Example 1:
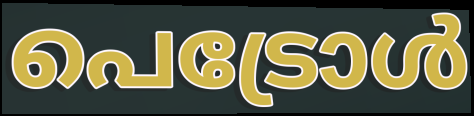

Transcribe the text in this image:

പെട്രോൾ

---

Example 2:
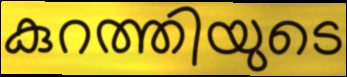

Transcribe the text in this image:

കുറത്തിയുടെ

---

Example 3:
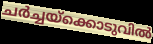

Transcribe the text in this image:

ചർച്ചയ്ക്കൊടുവിൽ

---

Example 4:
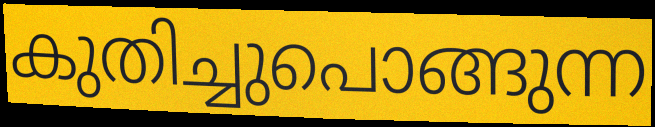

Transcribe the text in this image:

കുതിച്ചുപൊങ്ങുന്ന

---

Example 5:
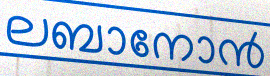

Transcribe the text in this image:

ലബാനോൻ